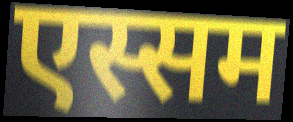
एस्सम